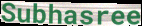
Subhasree